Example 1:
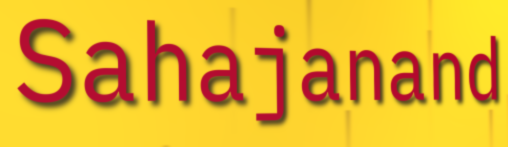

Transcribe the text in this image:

Sahajanand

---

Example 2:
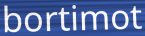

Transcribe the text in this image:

bortimot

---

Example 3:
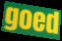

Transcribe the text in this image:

goed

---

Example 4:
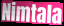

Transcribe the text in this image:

Nimtala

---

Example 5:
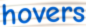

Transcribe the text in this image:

hovers